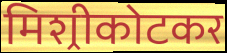
मिश्रीकोटकर